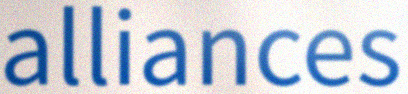
alliances